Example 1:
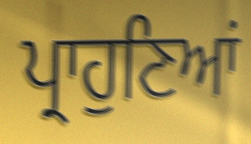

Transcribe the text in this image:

ਪ੍ਰਾਹੁਣਿਆਂ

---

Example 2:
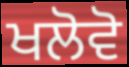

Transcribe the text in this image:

ਖਲੋਵੋ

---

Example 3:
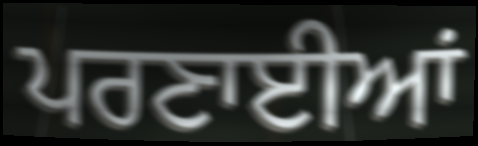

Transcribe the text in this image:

ਪਰਣਾਈਆਂ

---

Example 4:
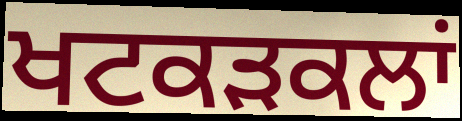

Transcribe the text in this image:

ਖਟਕੜਕਲਾਂ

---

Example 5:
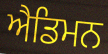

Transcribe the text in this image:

ਐਡਿਮਨ